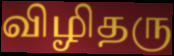
விழிதரு